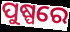
ପୁଷ୍ପରେ